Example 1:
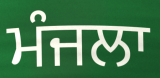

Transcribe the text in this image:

ਮੰਜਲਾ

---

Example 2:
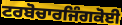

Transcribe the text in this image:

ਟਰਬੋਚਾਰਜਿੰਗਕੋਈ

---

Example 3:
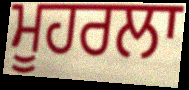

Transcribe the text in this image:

ਮੂਹਰਲਾ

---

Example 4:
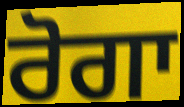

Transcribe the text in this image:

ਰੋਗਾ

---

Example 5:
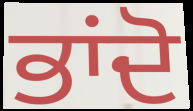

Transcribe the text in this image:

ਭਾਂਦੋ